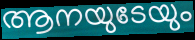
ആനയുടേയും